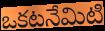
ఒకటనేమిటి